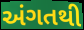
અંગતથી